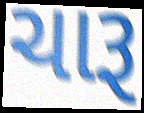
ચારૂ